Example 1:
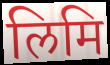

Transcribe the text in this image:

लिमि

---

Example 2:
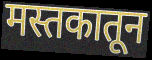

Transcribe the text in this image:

मस्तकातून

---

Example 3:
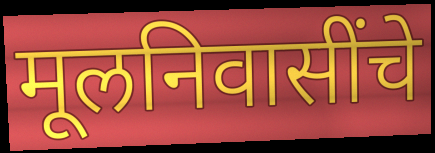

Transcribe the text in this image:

मूलनिवासींचे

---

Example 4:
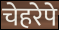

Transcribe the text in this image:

चेहरेपे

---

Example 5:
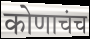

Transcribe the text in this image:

कोणाचंच